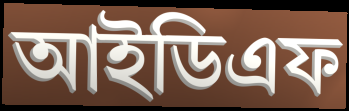
আইডিএফ